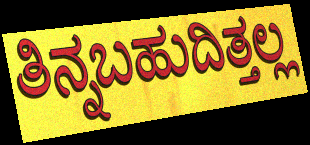
ತಿನ್ನಬಹುದಿತ್ತಲ್ಲ